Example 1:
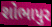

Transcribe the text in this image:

શોભાપુર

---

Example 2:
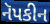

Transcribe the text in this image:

નૅપકીન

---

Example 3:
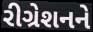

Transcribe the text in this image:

રીગ્રેશનને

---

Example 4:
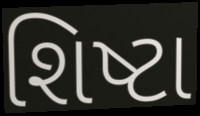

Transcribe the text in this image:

શિષ્ટા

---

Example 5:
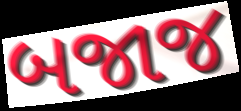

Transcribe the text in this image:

બજાજ